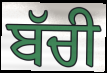
ਬੱਚੀ